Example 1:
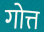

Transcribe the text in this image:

गोत्त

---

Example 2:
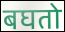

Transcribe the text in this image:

बघतो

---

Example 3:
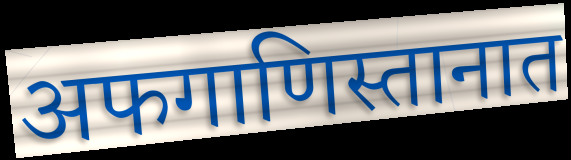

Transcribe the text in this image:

अफगाणिस्तानात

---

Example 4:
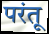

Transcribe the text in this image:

परंतू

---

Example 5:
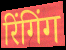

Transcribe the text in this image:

रिंगिंग